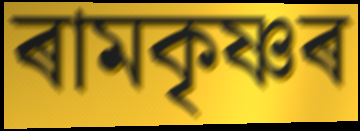
ৰামকৃষ্ণৰ